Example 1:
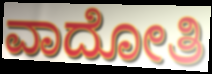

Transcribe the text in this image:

ವಾದೋತಿ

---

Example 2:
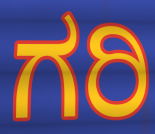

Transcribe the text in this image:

ಗರಿ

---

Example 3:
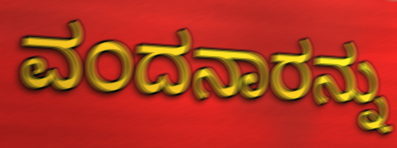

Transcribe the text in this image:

ವಂದನಾರನ್ನು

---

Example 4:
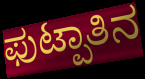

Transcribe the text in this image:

ಫುಟ್ಪಾತಿನ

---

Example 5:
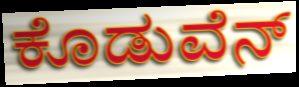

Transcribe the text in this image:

ಕೊಡುವೆನ್